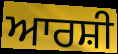
ਆਰਸ਼ੀ